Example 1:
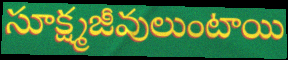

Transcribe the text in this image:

సూక్ష్మజీవులుంటాయి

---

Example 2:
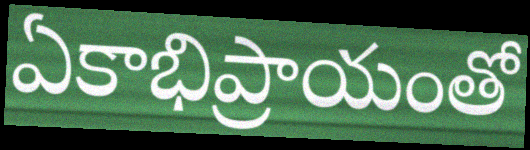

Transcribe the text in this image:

ఏకాభిప్రాయంతో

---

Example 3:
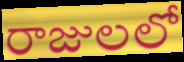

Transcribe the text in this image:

రాజులలో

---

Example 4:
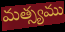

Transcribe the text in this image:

మత్స్యము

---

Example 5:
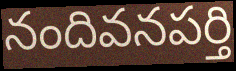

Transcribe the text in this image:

నందివనపర్తి